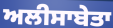
ਅਲੀਸਾਬੇਤਾ